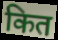
कित